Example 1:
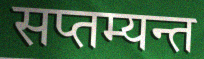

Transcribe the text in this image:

सप्तम्यन्त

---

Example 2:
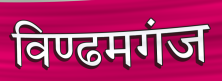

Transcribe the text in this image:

विण्ढमगंज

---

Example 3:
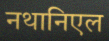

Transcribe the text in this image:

नथानिएल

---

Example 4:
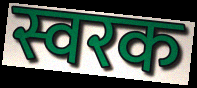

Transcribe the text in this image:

स्वरक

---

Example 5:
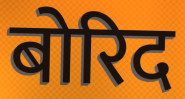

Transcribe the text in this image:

बोरिद